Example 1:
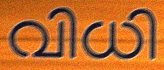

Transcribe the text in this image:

വിധി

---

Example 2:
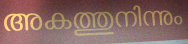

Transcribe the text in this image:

അകത്തുനിന്നും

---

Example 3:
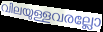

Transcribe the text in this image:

വിലയുള്ളവരല്ലോ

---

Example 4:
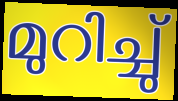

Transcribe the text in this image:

മുറിച്ചു്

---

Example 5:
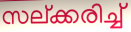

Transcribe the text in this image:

സല്ക്കരിച്ച്